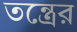
তন্ত্রের